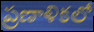
ప్రణాళికలో